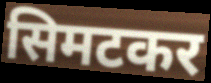
सिमटकर